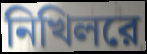
নিখিলরে